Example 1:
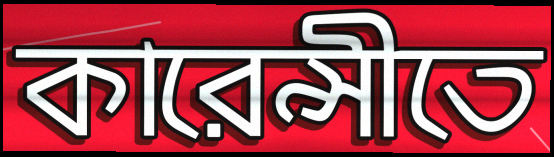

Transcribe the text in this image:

কারেন্সীতে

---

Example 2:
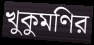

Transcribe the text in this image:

খুকুমণির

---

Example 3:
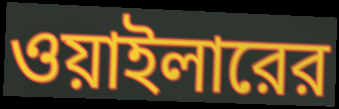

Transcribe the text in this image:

ওয়াইলারের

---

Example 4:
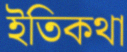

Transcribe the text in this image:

ইতিকথা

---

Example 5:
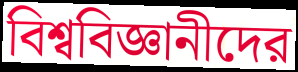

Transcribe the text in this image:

বিশ্ববিজ্ঞানীদের